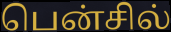
பென்சில்